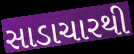
સાડાચારથી